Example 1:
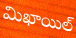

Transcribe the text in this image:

మిఖాయిల్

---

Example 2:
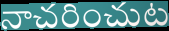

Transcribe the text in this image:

నాచరించుట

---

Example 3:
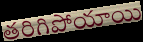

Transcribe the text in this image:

తరిగిపోయాయి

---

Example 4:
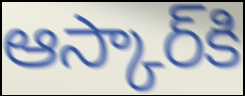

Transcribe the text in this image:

ఆస్కార్‌కి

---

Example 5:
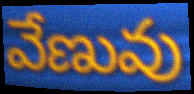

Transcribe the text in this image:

వేణువు